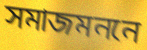
সমাজমননে